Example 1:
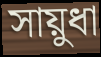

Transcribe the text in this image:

সায়ুধা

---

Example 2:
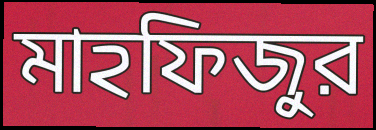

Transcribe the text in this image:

মাহফিজুর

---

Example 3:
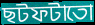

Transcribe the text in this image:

ছটফটাতো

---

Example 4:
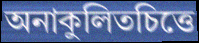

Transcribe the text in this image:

অনাকুলিতচিত্তে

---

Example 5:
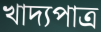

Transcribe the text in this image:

খাদ্যপাত্র